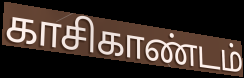
காசிகாண்டம்